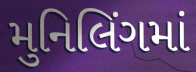
મુનિલિંગમાં